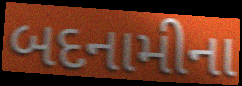
બદનામીના